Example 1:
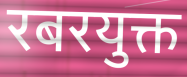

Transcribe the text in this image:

रबरयुक्त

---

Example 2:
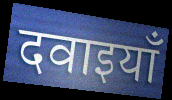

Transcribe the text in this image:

दवाइयाँ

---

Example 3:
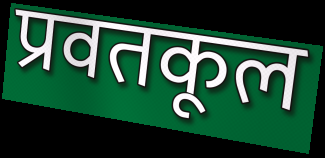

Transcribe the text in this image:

प्रवतकूल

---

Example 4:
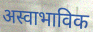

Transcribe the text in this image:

अस्वाभाविक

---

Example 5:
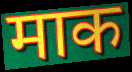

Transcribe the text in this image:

माक